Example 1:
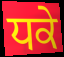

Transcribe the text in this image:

ਧਕੇ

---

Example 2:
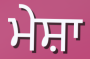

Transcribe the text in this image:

ਮੇਸ਼ਾ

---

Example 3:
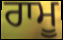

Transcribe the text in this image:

ਰਾਮੂ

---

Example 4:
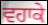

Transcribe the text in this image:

ਵਹਾਕੇ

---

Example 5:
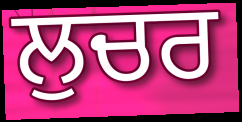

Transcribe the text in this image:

ਲੁਚਰ